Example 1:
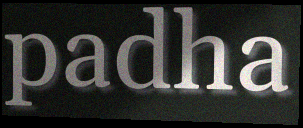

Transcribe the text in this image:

padha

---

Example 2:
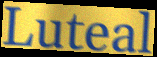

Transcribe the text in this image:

Luteal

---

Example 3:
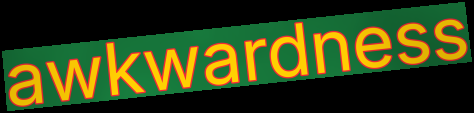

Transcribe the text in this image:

awkwardness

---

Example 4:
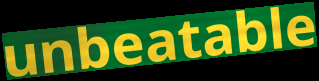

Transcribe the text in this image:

unbeatable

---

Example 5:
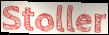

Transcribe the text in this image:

Stoller